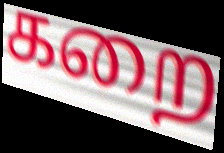
கறை